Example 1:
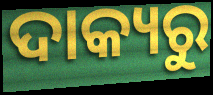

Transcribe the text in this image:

ଦାକ୍ୟରୁ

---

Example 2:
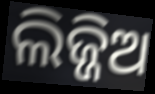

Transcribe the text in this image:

ଲିଜ୍ଜିଅ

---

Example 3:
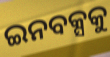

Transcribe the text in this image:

ଇନବକ୍ସକୁ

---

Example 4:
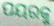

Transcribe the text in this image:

ପୟରକୁ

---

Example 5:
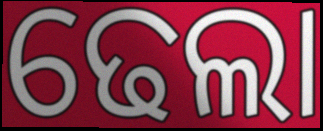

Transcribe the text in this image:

ଢେଲା